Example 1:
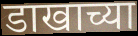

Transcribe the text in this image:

डाखाच्या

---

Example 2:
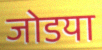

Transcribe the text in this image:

जोडया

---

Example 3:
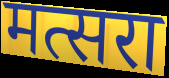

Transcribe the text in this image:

मत्सरा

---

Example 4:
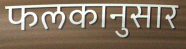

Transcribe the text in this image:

फलकानुसार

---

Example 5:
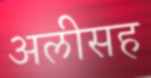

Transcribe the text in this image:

अलीसह